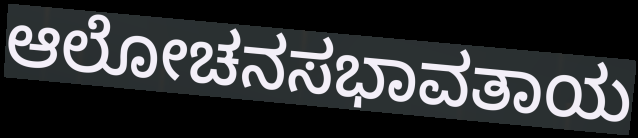
ಆಲೋಚನಸಭಾವತಾಯ